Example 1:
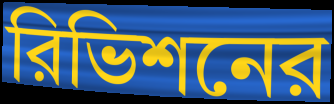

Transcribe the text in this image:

রিভিশনের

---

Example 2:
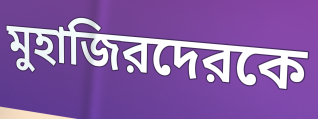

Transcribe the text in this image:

মুহাজিরদেরকে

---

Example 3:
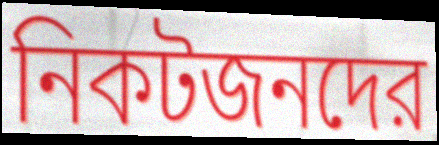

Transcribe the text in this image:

নিকটজনদের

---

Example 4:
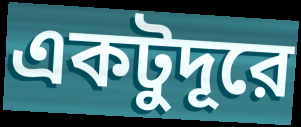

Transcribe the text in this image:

একটুদূরে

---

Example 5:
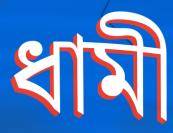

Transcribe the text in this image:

ধামী